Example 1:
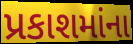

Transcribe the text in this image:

પ્રકાશમાંના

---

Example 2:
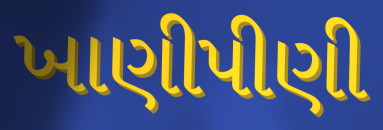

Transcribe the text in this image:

ખાણીપીણી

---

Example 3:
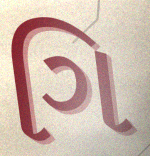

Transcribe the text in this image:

ગિ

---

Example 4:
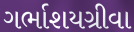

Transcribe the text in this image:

ગર્ભાશયગ્રીવા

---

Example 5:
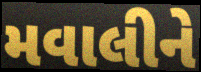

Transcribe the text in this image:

મવાલીને